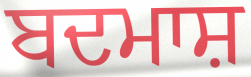
ਬਦਮਾਸ਼